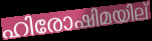
ഹിരോഷിമയില്